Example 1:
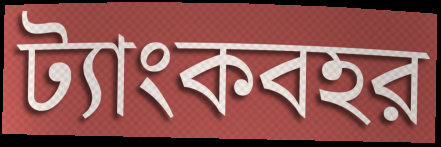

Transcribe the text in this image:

ট্যাংকবহর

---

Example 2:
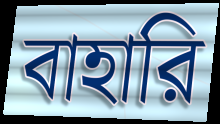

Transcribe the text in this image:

বাহারি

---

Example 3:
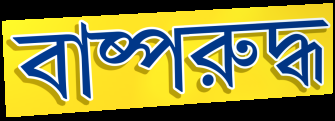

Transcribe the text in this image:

বাষ্পরুদ্ধ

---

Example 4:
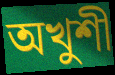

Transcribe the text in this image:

অখুশী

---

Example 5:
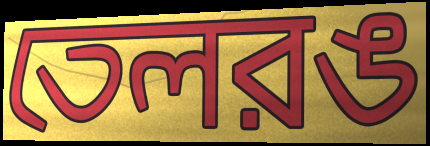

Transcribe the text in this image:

তেলরঙ